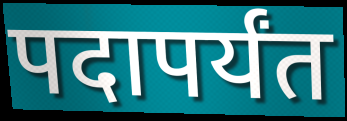
पदापर्यंत